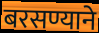
बरसण्याने